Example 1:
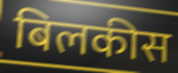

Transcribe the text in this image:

बिलकीस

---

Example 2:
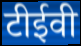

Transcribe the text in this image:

टीईवी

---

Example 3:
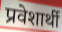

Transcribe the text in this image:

प्रवेशार्थी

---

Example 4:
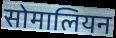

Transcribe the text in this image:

सोमालियन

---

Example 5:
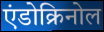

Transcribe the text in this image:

एंडोक्रिनोल